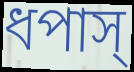
ধপাস্